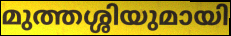
മുത്തശ്ശിയുമായി